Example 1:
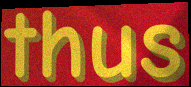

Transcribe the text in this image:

thus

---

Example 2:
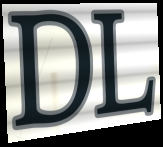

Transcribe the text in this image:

DL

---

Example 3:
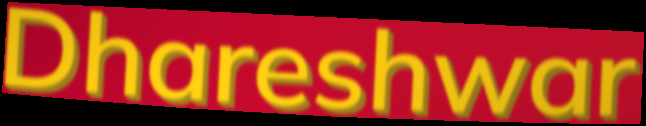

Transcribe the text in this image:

Dhareshwar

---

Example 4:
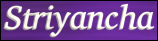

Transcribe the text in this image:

Striyancha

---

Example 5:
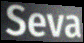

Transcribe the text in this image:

Seva